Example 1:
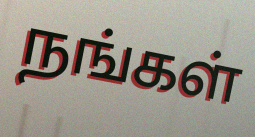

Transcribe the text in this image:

நங்கள்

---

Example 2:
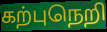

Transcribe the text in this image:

கற்புநெறி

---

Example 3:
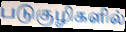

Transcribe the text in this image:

படுகுழிகளில்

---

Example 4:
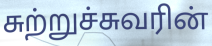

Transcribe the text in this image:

சுற்றுச்சுவரின்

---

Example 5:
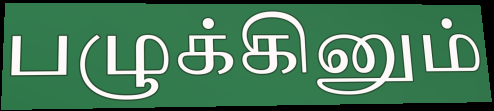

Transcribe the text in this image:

பழுக்கினும்